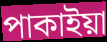
পাকাইয়া